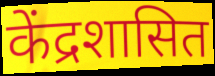
केंद्रशासित